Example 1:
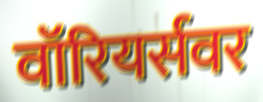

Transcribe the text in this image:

वॉरियर्सवर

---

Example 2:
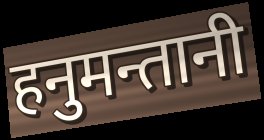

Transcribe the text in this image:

हनुमन्तानी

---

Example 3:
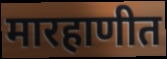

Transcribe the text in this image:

मारहाणीत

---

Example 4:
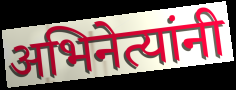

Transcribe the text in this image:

अभिनेत्यांनी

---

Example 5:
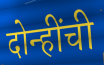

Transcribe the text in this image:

दोन्हींची